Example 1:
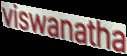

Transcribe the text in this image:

viswanatha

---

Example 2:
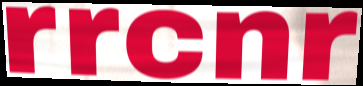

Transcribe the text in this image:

rrcnr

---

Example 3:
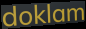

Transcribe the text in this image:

doklam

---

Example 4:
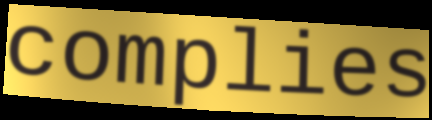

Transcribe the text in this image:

complies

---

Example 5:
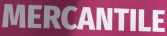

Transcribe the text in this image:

MERCANTILE